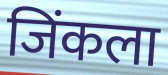
जिंकला